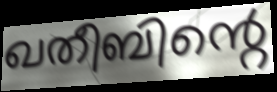
ഖതീബിന്റെ